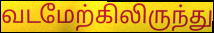
வடமேற்கிலிருந்து